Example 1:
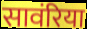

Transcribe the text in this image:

सावंरिया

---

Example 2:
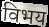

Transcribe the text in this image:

विभय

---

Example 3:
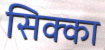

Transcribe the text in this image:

सिक्‍का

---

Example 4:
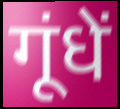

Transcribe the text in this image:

गूंधें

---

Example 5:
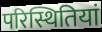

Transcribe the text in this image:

परिस्थितियां